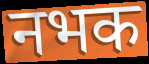
नभक